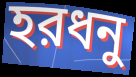
হরধনু